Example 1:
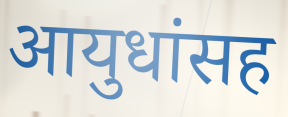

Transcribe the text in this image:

आयुधांसह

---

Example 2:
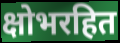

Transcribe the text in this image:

क्षोभरहित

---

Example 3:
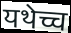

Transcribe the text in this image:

यथेच्च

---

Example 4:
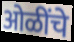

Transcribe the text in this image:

ओळींचे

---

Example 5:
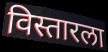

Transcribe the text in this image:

विस्तारला